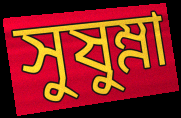
সুষুম্না